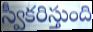
స్వీకరిస్తుంది